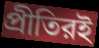
প্রীতিরই